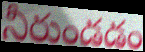
నీరుండడం